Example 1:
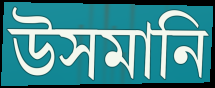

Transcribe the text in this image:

উসমানি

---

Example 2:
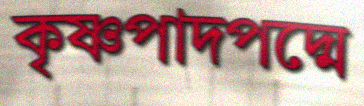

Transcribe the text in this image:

কৃষ্ণপাদপদ্মে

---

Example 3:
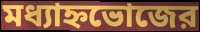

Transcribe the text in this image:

মধ্যাহ্নভোজের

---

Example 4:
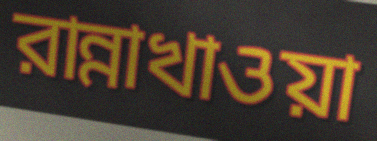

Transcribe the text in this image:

রান্নাখাওয়া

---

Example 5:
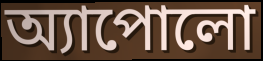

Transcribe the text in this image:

অ্যাপোলো